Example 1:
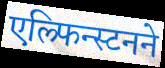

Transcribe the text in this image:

एल्फिन्स्टनने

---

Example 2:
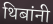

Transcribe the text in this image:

थिबांनी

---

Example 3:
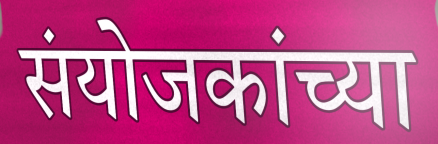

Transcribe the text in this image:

संयोजकांच्या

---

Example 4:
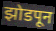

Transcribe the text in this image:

झोडपून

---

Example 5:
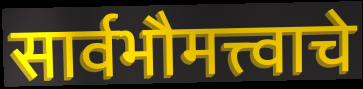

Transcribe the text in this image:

सार्वभौमत्त्वाचे